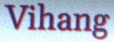
Vihang